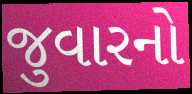
જુવારનો